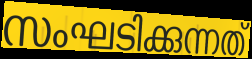
സംഘടിക്കുന്നത്